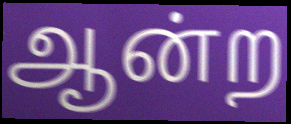
ஆன்ற